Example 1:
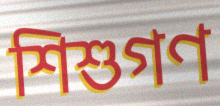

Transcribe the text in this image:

শিশুগণ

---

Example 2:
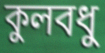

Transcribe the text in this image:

কুলবধু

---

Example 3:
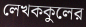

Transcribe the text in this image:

লেখককুলের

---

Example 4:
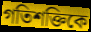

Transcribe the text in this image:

গতিশক্তিকে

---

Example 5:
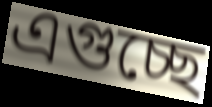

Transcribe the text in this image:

এগুচ্ছে